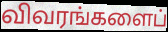
விவரங்களைப்